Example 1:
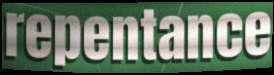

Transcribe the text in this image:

repentance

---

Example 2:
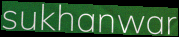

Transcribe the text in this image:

sukhanwar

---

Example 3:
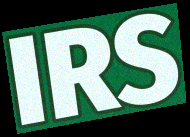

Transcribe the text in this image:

IRS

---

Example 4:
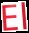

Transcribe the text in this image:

El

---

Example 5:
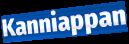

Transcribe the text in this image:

Kanniappan